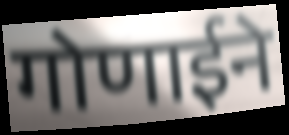
गोणाईने